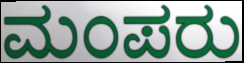
ಮಂಪರು